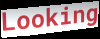
Looking